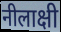
नीलाक्षी